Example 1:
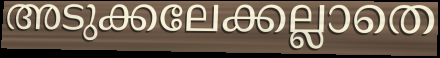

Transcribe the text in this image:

അടുക്കലേക്കല്ലാതെ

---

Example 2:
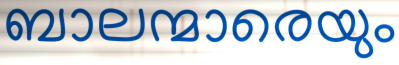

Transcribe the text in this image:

ബാലന്മാരെയും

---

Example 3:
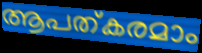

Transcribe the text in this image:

ആപത്കരമാം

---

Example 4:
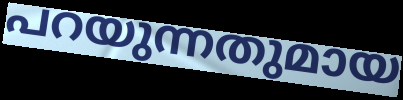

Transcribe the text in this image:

പറയുന്നതുമായ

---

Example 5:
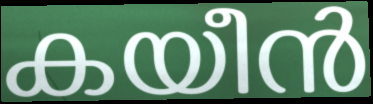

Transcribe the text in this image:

കയീൻ